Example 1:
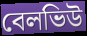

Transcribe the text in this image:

বেলভিউ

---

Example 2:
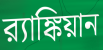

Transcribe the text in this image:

র‍্যাঙ্কিয়ান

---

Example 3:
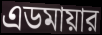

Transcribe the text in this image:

এডমায়ার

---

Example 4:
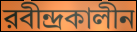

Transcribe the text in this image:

রবীন্দ্রকালীন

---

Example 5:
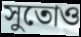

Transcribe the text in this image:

সুতোও